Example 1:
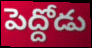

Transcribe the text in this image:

పెద్దోడు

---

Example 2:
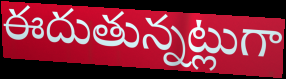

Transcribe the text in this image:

ఈదుతున్నట్లుగా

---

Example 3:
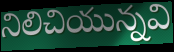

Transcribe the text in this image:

నిలిచియున్నవి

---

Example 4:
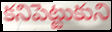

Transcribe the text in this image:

కనిపెట్టుకుని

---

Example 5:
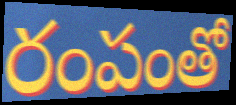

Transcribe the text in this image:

రంపంతో